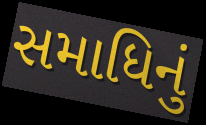
સમાધિનું